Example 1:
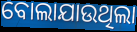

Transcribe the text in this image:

ବୋଲାଯାଉଥିଲା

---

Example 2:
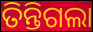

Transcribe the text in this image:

ତିନ୍ତିଗଲା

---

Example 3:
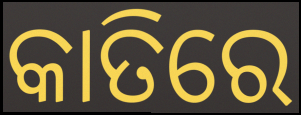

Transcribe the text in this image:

କାତିରେ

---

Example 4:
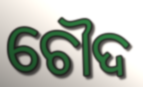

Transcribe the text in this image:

ଚୌଦ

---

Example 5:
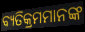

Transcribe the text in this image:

ବ୍ୟତିକ୍ରମମାନଙ୍କ